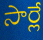
సార్లే